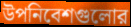
উপনিবেশগুলোর